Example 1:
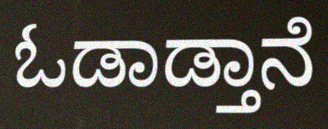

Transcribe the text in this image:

ಓಡಾಡ್ತಾನೆ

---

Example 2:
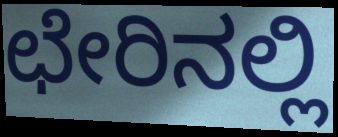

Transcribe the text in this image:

ಛೇರಿನಲ್ಲಿ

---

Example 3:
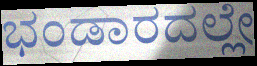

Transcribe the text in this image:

ಭಂಡಾರದಲ್ಲೇ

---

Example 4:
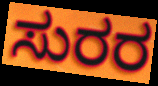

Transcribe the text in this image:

ಸುರರ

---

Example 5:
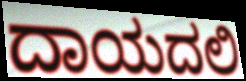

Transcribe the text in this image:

ದಾಯದಲಿ